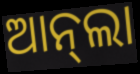
ଆନ୍‌ଲା